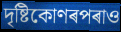
দৃষ্টিকোণৰপৰাও